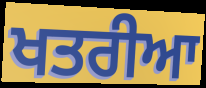
ਖਤਰੀਆ